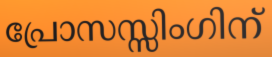
പ്രോസസ്സിംഗിന്